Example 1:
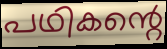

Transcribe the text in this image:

പഥികന്റെ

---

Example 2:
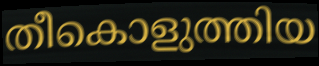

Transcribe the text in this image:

തീകൊളുത്തിയ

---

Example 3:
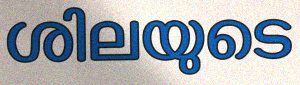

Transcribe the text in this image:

ശിലയുടെ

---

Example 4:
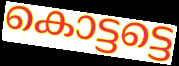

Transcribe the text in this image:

കൊട്ടട്ടെ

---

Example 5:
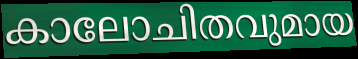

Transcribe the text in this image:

കാലോചിതവുമായ